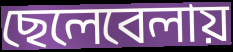
ছেলেবেলায়